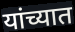
यांच्यात